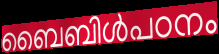
ബൈബിൾപഠനം